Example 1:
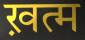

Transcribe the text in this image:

ख़त्‍म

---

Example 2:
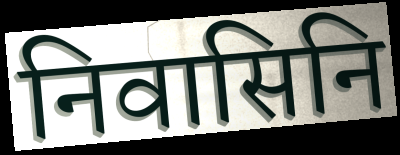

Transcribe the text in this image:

निवासिनि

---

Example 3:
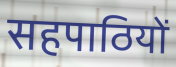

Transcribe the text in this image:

सहपाठियों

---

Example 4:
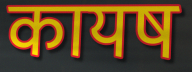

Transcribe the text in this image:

कायष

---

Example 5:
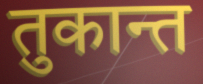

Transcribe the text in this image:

तुकान्त